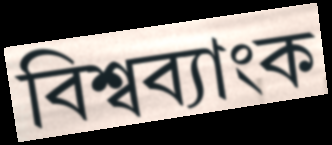
বিশ্বব্যাংক